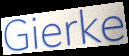
Gierke